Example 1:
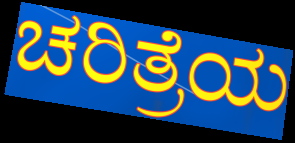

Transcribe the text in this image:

ಚರಿತ್ರೆಯ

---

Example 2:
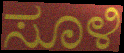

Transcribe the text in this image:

ಸೂಳಿ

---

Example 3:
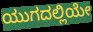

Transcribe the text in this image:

ಯುಗದಲ್ಲಿಯೇ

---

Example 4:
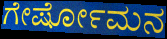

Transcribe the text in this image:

ಗೇರ್ಷೋಮನ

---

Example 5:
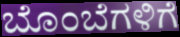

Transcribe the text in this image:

ಬೊಂಬೆಗಳಿಗೆ